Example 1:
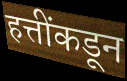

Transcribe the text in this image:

हत्तींकडून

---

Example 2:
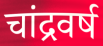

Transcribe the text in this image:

चांद्रवर्ष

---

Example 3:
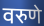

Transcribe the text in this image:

वरुणे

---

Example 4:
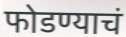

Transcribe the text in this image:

फोडण्याचं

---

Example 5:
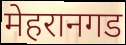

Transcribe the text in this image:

मेहरानगड